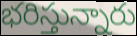
భరిస్తున్నారు